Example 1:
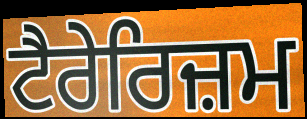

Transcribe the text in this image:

ਟੈਰੇਰਿਜ਼ਮ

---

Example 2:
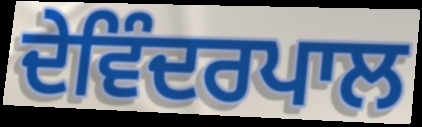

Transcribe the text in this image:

ਦੇਵਿੰਦਰਪਾਲ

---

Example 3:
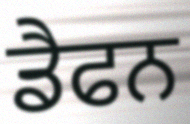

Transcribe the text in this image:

ਡੈਫਨ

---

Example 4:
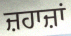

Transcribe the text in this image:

ਜ਼ਹਾਜ਼ਾਂ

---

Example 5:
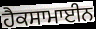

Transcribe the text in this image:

ਹੈਕਸਾਮਾਈਨ